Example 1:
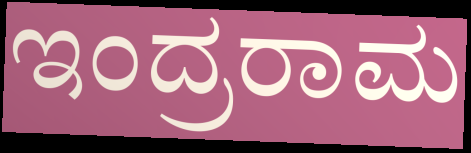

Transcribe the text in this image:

ಇಂದ್ರರಾಮ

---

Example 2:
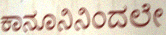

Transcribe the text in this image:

ಕಾನೂನಿನಿಂದಲೇ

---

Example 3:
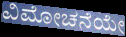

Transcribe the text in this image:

ವಿಮೋಚನೆಯೇ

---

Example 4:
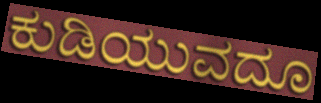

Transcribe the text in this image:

ಕುಡಿಯುವದೂ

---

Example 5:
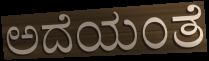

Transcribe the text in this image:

ಅದೆಯಂತೆ